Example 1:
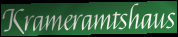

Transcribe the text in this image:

Krameramtshaus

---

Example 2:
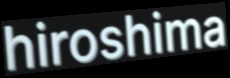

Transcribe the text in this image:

hiroshima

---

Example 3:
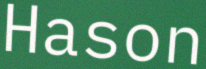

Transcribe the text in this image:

Hason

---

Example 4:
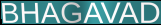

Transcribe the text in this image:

BHAGAVAD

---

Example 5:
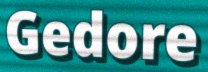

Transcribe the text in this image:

Gedore